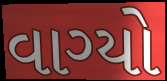
વાગ્યો